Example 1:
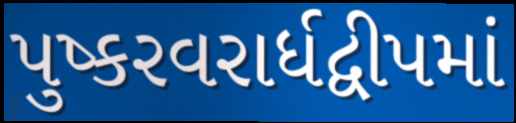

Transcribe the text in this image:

પુષ્કરવરાર્ધદ્વીપમાં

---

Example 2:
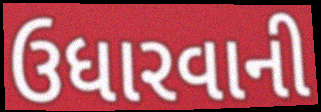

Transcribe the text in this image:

ઉધારવાની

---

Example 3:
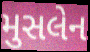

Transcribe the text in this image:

મુસલેન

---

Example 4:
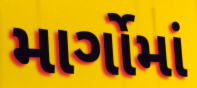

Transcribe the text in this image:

માર્ગોમાં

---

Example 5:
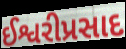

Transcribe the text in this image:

ઈશ્વરીપ્રસાદ